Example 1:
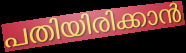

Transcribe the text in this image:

പതിയിരിക്കാൻ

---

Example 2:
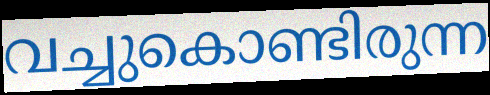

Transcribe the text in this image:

വച്ചുകൊണ്ടിരുന്ന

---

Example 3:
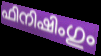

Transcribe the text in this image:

ഫിനിഷിംഗും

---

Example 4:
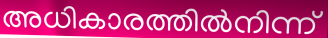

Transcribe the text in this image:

അധികാരത്തിൽനിന്ന്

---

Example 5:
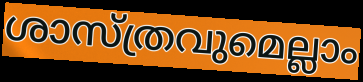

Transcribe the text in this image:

ശാസ്ത്രവുമെല്ലാം